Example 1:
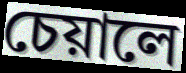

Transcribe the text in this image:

চেয়ালে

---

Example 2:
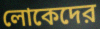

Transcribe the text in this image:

লোকেদের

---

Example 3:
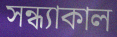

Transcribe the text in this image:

সন্ধ্যাকাল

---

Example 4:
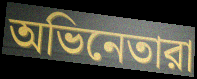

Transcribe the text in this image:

অভিনেতারা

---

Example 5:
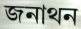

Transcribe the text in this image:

জনাথন